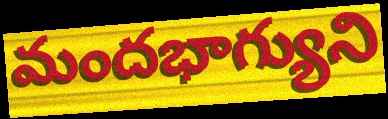
మందభాగ్యుని